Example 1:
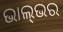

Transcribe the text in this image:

ଭାଲ୍‌ଭର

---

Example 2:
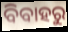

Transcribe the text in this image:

ବିବାହରୁ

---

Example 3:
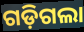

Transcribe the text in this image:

ଗଡ଼ିଗଲା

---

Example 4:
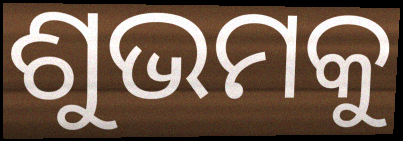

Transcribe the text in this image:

ଶୁଭମକୁ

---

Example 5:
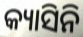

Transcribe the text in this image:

କ୍ୟାସିନି